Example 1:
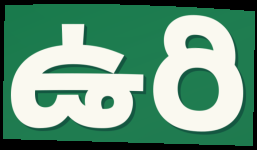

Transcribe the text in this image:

ఉరి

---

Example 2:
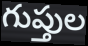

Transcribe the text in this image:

గుప్తుల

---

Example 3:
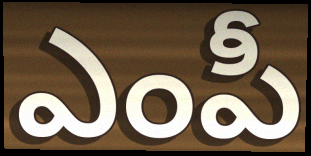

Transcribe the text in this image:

ఎంపీ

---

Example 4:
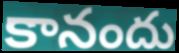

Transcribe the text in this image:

కానందు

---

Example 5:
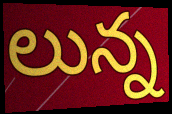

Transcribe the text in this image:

లున్న